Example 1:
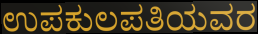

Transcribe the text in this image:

ಉಪಕುಲಪತಿಯವರ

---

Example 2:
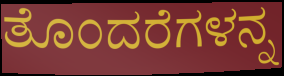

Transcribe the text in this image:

ತೊಂದರೆಗಳನ್ನ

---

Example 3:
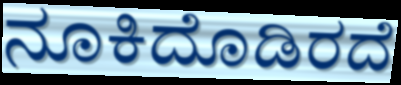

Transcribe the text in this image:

ನೂಕಿದೊಡಿರದೆ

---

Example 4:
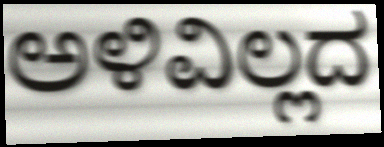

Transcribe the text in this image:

ಅಳಿವಿಲ್ಲದ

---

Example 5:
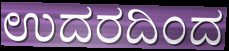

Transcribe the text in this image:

ಉದರದಿಂದ